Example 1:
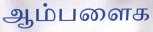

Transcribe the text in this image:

ஆம்பளைக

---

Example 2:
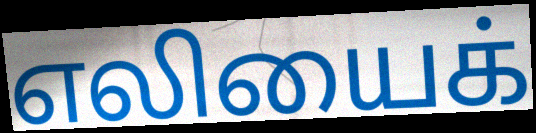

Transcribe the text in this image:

எலியைக்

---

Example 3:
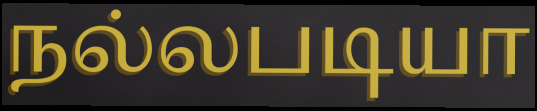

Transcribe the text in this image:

நல்லபடியா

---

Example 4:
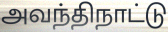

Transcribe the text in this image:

அவந்திநாட்டு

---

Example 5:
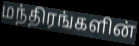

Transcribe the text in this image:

மந்திரங்களின்